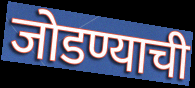
जोडण्याची